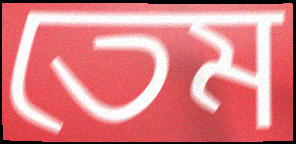
তেম